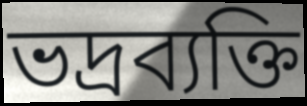
ভদ্রব্যক্তি